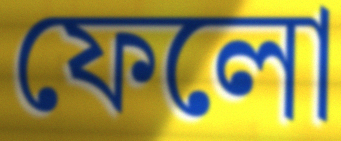
ফেলো